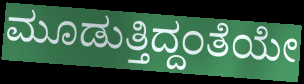
ಮೂಡುತ್ತಿದ್ದಂತೆಯೇ